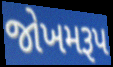
જોખમરૂપ